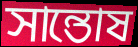
সান্তোষ